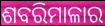
ଶବରିମାଳାର